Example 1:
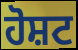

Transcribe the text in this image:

ਹੋਸ਼ਟ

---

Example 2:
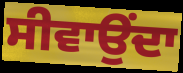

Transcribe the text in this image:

ਸੀਵਾਉਂਦਾ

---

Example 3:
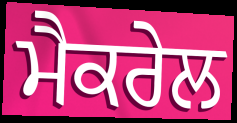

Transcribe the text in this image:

ਮੈਕਰੇਲ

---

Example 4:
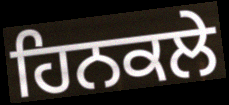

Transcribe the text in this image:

ਹਿਨਕਲੇ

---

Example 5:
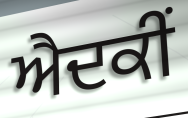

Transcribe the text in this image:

ਐਦਕੀਂ